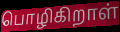
பொழிகிறாள்